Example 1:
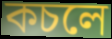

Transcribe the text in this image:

কচলে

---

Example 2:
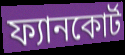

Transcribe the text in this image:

ফ্যানকোর্ট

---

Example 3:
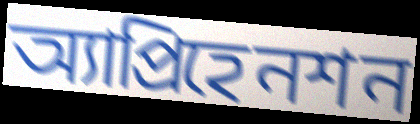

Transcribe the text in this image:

অ্যাপ্রিহেনশন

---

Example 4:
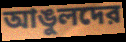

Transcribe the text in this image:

আঙুলদের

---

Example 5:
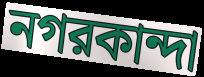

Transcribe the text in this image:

নগরকান্দা